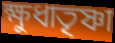
ক্ষুধাতৃষ্ণা